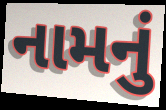
નામનું